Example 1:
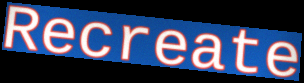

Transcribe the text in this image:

Recreate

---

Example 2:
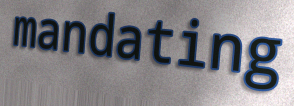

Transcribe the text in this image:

mandating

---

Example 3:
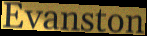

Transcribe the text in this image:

Evanston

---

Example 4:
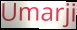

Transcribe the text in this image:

Umarji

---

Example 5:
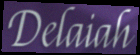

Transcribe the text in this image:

Delaiah